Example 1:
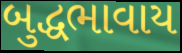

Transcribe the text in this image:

બુદ્ધભાવાય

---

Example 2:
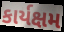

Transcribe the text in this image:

કાર્યક્ષમ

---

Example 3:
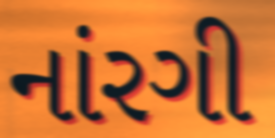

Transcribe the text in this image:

નાંરગી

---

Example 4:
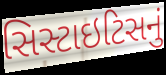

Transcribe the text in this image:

સિસ્ટાઇટિસનું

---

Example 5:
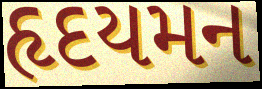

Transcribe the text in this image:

હૃદયમન